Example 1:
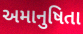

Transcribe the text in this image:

અમાનુષિતા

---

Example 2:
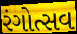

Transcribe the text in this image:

રંગોત્સવ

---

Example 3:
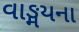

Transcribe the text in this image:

વાઙ્મયના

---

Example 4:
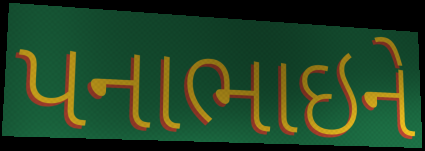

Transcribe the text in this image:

પનાભાઇને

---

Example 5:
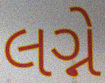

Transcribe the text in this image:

લગ્ને